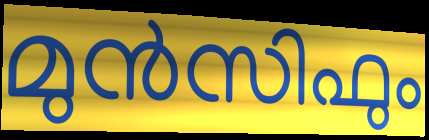
മുൻസിഫും